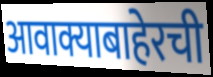
आवाक्याबाहेरची